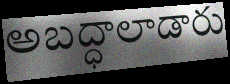
అబద్ధాలాడారు